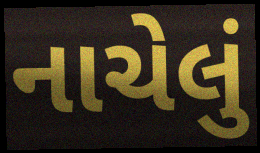
નાચેલું